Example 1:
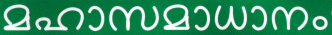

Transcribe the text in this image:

മഹാസമാധാനം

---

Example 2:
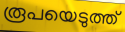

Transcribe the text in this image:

രൂപയെടുത്ത്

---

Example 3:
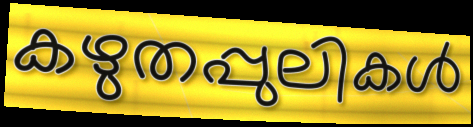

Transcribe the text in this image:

കഴുതപ്പുലികൾ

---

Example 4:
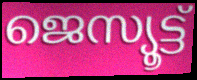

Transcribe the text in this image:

ജെസ്യൂട്ട്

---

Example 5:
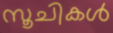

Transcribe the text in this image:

സൂചികൾ